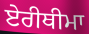
ਏਰੀਥੀਮਾ